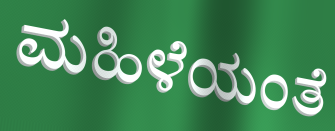
ಮಹಿಳೆಯಂತೆ